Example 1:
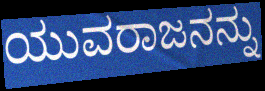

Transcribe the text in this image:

ಯುವರಾಜನನ್ನು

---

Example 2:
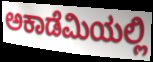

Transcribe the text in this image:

ಅಕಾಡೆಮಿಯಲ್ಲಿ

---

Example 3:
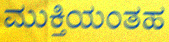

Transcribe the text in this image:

ಮುಕ್ತಿಯಂತಹ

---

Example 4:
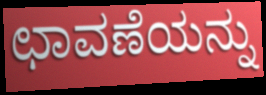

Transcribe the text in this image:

ಛಾವಣೆಯನ್ನು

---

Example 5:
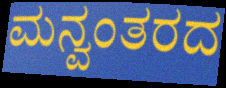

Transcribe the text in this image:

ಮನ್ವಂತರದ